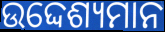
ଉଦ୍ଦେଶ୍ୟମାନ